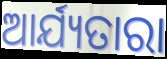
ଆର୍ଯ୍ୟତାରା